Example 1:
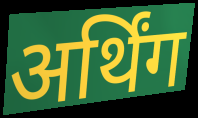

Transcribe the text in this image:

अर्थिंग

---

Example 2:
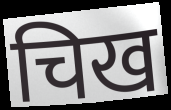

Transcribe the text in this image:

चिख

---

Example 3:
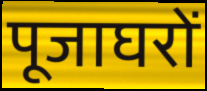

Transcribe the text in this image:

पूजाघरों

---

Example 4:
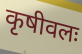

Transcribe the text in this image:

कृषीवलः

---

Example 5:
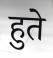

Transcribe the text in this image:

हुते